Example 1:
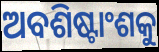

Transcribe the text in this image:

ଅବଶିଷ୍ଟାଂଶକୁ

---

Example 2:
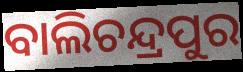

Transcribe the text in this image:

ବାଲିଚନ୍ଦ୍ରପୁର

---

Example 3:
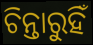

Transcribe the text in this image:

ଚିନ୍ତାରୁହିଁ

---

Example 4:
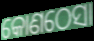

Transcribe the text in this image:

କୋଣଠେସା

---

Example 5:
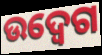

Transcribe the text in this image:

ଉଦ୍ବେଗ